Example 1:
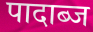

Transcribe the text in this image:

पादाब्ज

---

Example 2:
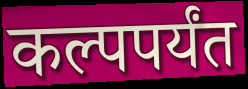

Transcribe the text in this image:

कल्पपर्यंत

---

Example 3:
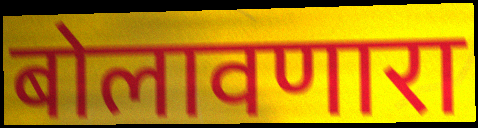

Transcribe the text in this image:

बोलावणारा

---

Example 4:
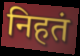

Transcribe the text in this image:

निहतं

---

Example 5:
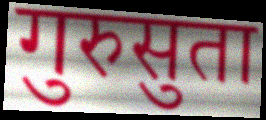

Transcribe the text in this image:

गुरुसुता